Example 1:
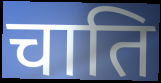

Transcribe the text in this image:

चाति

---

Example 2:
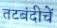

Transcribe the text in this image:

तटबंदीचें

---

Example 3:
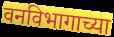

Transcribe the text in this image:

वनविभागाच्या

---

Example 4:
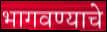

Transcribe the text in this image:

भागवण्याचे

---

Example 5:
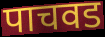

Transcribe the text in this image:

पाचवड